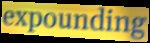
expounding